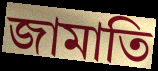
জামাতি